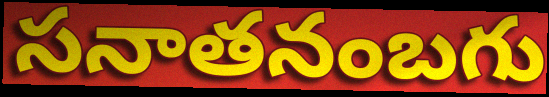
సనాతనంబగు